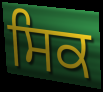
ਸਿਕ